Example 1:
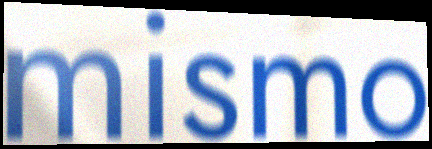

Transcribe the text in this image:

mismo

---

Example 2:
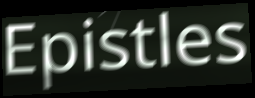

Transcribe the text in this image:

Epistles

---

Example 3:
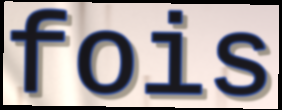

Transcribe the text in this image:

fois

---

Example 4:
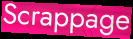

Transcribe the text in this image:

Scrappage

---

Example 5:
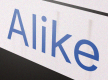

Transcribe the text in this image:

Alike